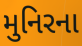
મુનિરના